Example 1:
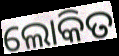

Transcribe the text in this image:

ଲୋକିତ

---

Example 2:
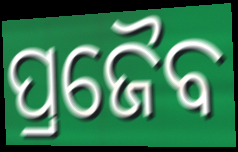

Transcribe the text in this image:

ପ୍ରଜୈବ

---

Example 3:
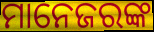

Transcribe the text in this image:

ମାନେଜରଙ୍କ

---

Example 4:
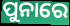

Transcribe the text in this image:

ପୁନାରେ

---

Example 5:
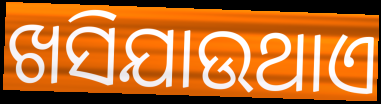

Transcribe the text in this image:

ଖସିଯାଉଥାଏ